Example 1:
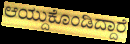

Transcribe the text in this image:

ಆಯ್ದುಕೊಂಡಿದ್ದಾರೆ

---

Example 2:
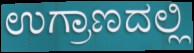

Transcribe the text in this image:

ಉಗ್ರಾಣದಲ್ಲಿ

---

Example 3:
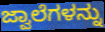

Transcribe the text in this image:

ಜ್ವಾಲೆಗಳನ್ನು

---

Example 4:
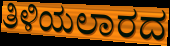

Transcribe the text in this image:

ತಿಳಿಯಲಾರದ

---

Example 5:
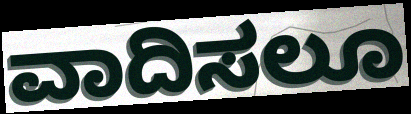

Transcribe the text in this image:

ವಾದಿಸಲೂ